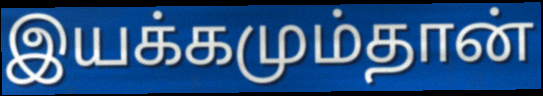
இயக்கமும்தான்